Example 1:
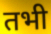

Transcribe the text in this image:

तभी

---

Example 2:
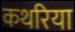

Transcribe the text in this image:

कथरिया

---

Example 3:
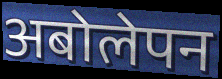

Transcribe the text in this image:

अबोलेपन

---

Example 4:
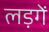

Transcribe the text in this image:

लड़गें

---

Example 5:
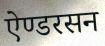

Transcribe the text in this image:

ऐण्डरसन